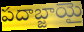
పదాబ్జాయై